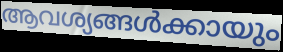
ആവശ്യങ്ങൾക്കായും